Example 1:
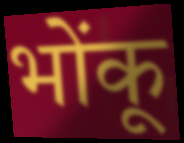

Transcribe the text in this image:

भोंकू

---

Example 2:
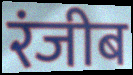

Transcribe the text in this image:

रंजीब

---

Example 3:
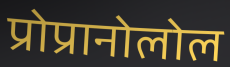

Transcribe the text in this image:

प्रोप्रानोलोल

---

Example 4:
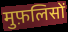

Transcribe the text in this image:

मुफ़लिसों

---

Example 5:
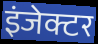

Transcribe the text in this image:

इंजेक्टर